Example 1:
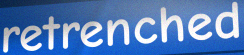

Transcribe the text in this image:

retrenched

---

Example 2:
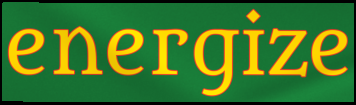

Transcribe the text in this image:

energize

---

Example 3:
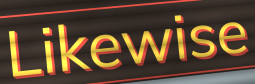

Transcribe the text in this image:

Likewise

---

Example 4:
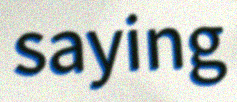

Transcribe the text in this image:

saying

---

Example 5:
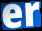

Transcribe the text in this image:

er